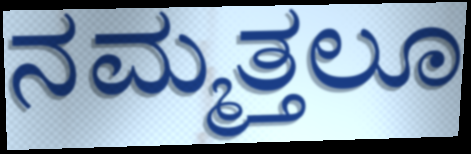
ನಮ್ಮತ್ತಲೂ